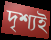
দৃশ্যই